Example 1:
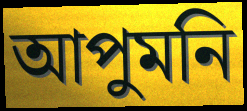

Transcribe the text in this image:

আপুমনি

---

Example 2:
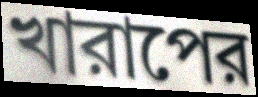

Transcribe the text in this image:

খারাপের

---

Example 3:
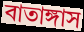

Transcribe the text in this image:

বাতাঙ্গাস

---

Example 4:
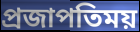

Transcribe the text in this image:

প্রজাপতিময়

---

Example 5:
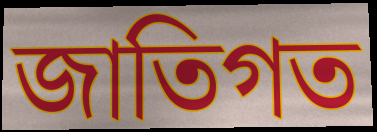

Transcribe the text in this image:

জাতিগত